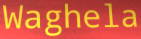
Waghela